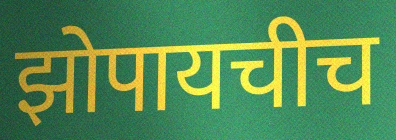
झोपायचीच